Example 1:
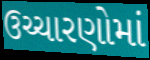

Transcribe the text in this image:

ઉચ્ચારણોમાં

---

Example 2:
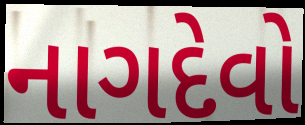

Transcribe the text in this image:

નાગદેવો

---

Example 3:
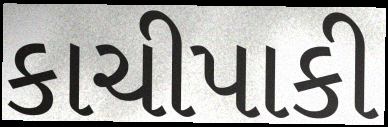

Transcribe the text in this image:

કાચીપાકી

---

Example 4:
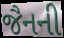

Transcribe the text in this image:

જૈનની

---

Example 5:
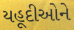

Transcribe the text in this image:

યહૂદીઓને